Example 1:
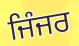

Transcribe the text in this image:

ਜਿੰਜਰ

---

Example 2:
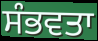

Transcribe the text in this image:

ਸੰਭਵਤਾ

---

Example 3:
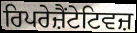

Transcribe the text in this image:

ਰਿਪਰੇਜ਼ੈਂਟੇਟਿਵਜ਼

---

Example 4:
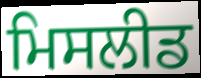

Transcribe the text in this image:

ਮਿਸਲੀਡ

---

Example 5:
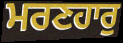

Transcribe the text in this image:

ਮਰਣਹਾਰੁ